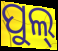
ପୁଲ୍